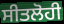
ਸੀਤਲੋਹੀ